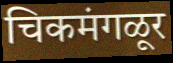
चिकमंगळूर